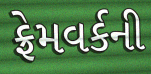
ફ્રેમવર્કની